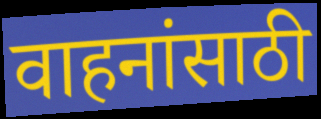
वाहनांसाठी